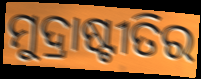
ମୁଦ୍ରାଷ୍ଟୀତିର